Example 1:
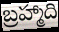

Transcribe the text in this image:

బ్రహ్మాది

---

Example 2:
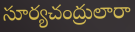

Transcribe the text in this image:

సూర్యచంద్రులారా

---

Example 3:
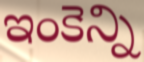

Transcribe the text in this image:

ఇంకెన్ని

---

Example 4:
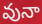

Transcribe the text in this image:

వునా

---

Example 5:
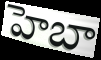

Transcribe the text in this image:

హెబా